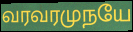
வரவரமுநயே